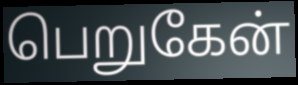
பெறுகேன்